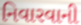
નિવારવાની